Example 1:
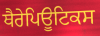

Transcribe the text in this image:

ਥੈਰੇਪਿਊਟਿਕਸ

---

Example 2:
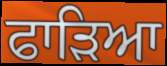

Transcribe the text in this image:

ਫਾੜਿਆ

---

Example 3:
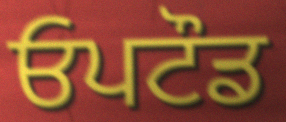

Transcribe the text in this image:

ਓਪਟੌਡ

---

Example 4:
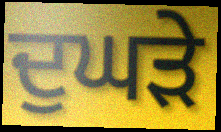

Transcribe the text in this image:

ਦੁਘੜੇ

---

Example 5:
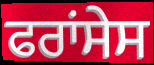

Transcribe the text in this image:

ਫਰਾਂਸੇਸ